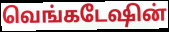
வெங்கடேஷின்